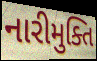
નારીમુક્તિ